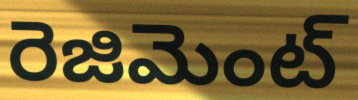
రెజిమెంట్